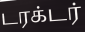
டரக்டர்